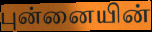
புன்னையின்